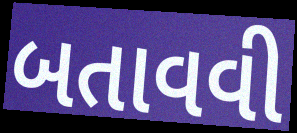
બતાવવી